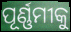
ପୂର୍ଣ୍ଣମୀକୁ